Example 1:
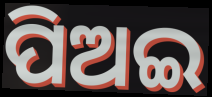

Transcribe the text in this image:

ପିଅଇ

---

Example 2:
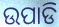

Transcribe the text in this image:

ଉପାଡି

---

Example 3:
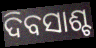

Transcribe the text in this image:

ଦିବସାଶ୍ଚ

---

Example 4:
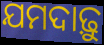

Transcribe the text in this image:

ଯମଦାଢ଼ୁ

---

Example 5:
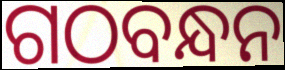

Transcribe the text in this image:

ଗଠବନ୍ଧନ